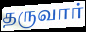
தருவார்